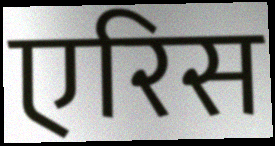
एरिस